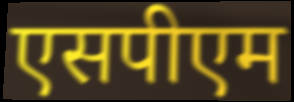
एसपीएम